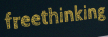
freethinking